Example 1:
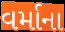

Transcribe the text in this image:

વર્માના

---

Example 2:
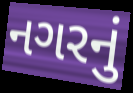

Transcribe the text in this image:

નગરનું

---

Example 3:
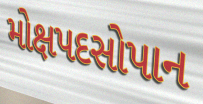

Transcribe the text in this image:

મોક્ષપદસોપાન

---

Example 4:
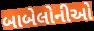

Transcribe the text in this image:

બાબેલોનીઓ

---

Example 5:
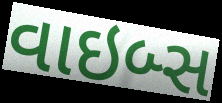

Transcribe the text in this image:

વાઇબ્સ